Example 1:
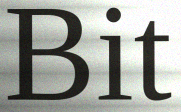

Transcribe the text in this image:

Bit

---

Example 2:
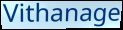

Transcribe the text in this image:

Vithanage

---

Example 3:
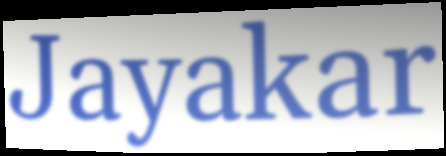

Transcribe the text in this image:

Jayakar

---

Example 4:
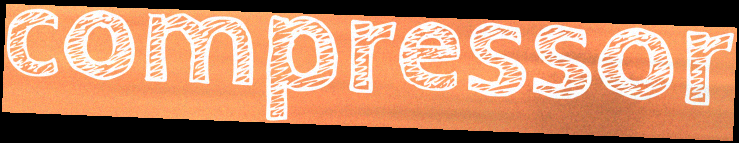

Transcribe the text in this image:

compressor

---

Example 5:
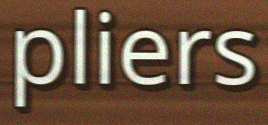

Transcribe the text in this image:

pliers